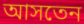
আসতেন